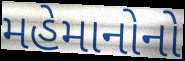
મહેમાનોનો